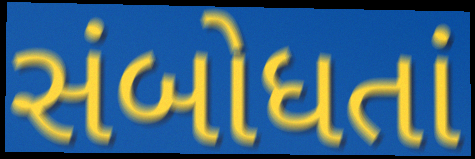
સંબોધતાં